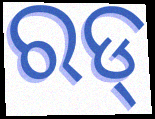
ରଡ୍